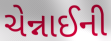
ચેન્નાઈની